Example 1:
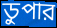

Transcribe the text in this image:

ডুপার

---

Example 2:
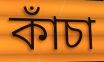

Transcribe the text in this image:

কাঁচা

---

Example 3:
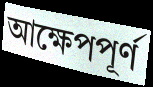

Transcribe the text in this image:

আক্ষেপপূর্ণ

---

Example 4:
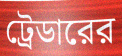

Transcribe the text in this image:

ট্রেডারের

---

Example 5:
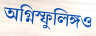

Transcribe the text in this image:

অগ্নিস্ফুলিঙ্গও